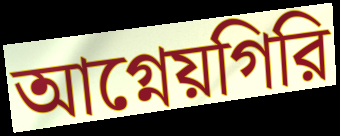
আগ্নেয়গিরি